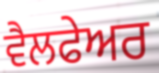
ਵੈਲਫੇਅਰ